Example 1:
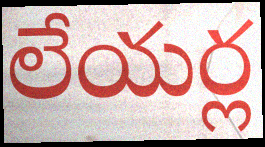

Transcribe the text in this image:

లేయర్ల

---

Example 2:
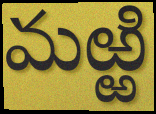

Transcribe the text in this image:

మఱ్ఱి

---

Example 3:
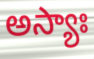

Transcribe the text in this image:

అస్యాః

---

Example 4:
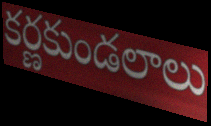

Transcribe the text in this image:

కర్ణకుండలాలు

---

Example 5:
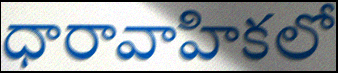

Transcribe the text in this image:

ధారావాహికలో